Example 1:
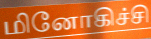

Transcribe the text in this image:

மினோகிச்சி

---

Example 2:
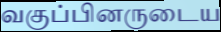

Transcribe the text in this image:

வகுப்பினருடைய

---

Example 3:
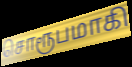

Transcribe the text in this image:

சொரூபமாகி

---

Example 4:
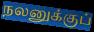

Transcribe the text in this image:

நலனுக்குப்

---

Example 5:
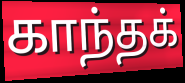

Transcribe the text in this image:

காந்தக்